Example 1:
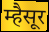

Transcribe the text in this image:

म्हैसूर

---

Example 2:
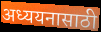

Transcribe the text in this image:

अध्ययनासाठी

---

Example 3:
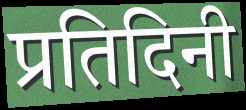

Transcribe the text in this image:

प्रतिदिनी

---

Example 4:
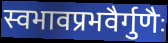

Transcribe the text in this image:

स्वभावप्रभवैर्गुणैः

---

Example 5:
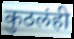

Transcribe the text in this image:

कुठलंही